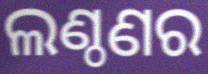
ଲଣ୍ଠଣର